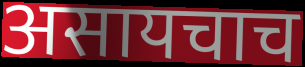
असायचाच